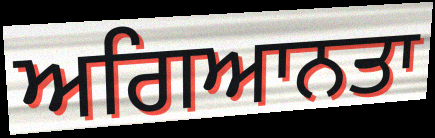
ਅਗਿਆਨਤਾ